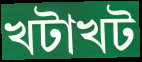
খটাখট